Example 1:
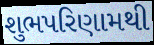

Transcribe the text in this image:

શુભપરિણામથી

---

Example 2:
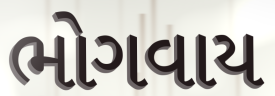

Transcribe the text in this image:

ભોગવાય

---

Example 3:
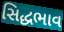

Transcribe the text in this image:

સિદ્ધભાવ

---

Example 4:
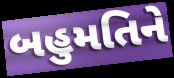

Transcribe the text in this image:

બહુમતિને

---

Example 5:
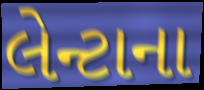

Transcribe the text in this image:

લેન્ટાના